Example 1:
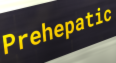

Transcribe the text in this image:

Prehepatic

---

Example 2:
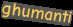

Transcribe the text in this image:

ghumanti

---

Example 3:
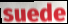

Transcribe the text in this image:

suede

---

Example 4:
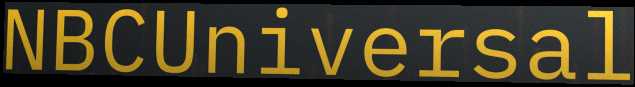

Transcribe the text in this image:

NBCUniversal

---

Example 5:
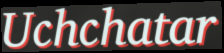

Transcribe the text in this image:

Uchchatar